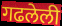
गढलेली